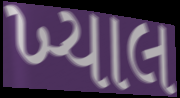
ખ્યાલ